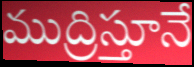
ముద్రిస్తూనే